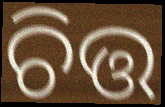
ଚିତ୍ତ